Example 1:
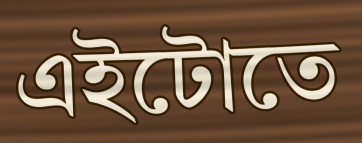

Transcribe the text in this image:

এইটোতে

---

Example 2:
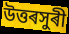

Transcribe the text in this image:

উত্তৰসুৰী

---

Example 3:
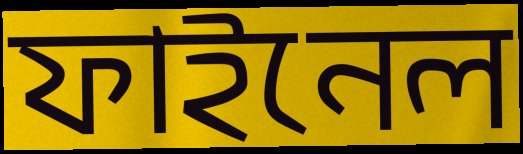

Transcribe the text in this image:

ফাইনেল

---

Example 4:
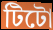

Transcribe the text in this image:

টিটো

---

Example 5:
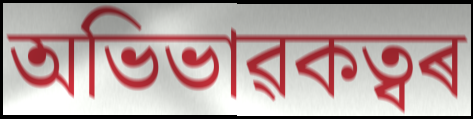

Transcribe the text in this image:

অভিভাৱকত্বৰ